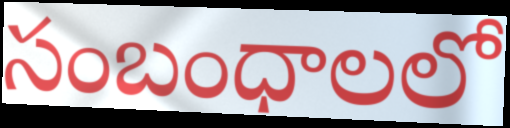
సంబంధాలలో